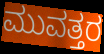
ಮುವತ್ತರ